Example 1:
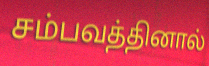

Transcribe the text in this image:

சம்பவத்தினால்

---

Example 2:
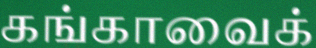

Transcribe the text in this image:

கங்காவைக்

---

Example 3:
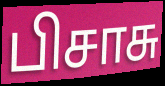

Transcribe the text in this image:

பிசாசு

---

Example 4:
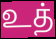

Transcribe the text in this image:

உத்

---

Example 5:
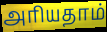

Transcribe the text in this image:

அரியதாம்